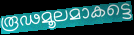
രൂഢമൂലമാകട്ടെ